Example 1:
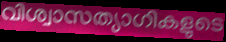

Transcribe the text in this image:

വിശ്വാസത്യാഗികളുടെ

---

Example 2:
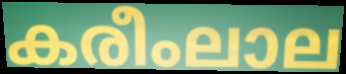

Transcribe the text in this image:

കരീംലാല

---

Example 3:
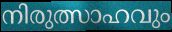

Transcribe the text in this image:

നിരുത്സാഹവും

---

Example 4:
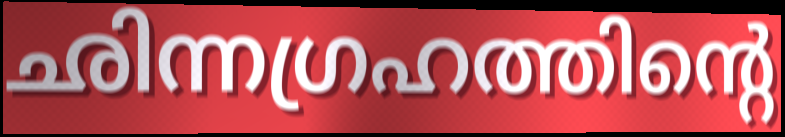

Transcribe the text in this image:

ഛിന്നഗ്രഹത്തിന്റെ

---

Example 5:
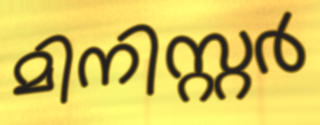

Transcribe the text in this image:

മിനിസ്റ്റർ